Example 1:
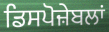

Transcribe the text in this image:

ਡਿਸਪੋਜ਼ੇਬਲਾਂ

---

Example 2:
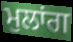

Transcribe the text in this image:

ਮੁਲਾਂਗ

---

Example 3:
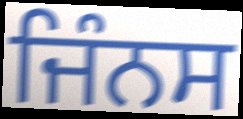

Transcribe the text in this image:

ਜਿੰਨਸ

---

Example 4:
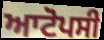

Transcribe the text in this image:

ਆਟੋਪਸੀ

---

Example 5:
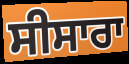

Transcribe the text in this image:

ਸੀਸਾਰਾ